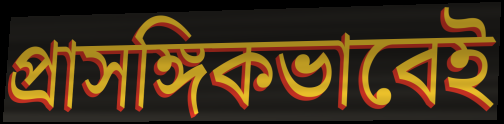
প্রাসঙ্গিকভাবেই